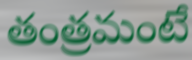
తంత్రమంటే